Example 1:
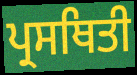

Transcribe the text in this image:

ਪ੍ਰਸਥਿਤੀ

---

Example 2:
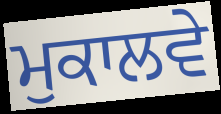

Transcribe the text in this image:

ਮੁਕਾਲਵੇ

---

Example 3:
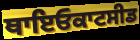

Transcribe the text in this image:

ਥਾਇਓਕਾਟਸੀਡ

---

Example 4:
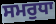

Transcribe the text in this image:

ਸਮਰੁਧਾ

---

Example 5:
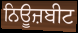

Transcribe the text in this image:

ਨਿਊਜ਼ਬੀਟ